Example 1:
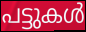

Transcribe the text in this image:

പട്ടുകൾ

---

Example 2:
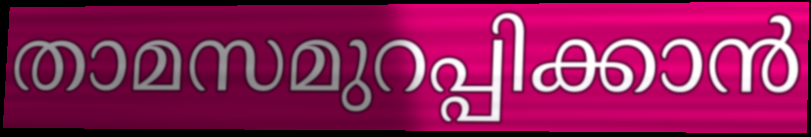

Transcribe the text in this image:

താമസമുറപ്പിക്കാൻ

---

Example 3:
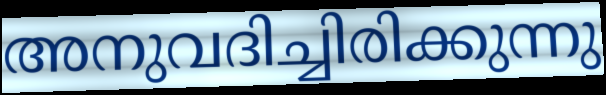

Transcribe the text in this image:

അനുവദിച്ചിരിക്കുന്നു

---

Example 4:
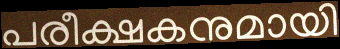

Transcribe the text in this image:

പരീക്ഷകനുമായി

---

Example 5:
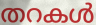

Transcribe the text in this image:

തറകൾ